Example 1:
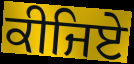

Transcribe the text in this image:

ਕੀਜਿਏ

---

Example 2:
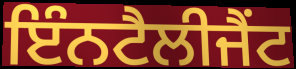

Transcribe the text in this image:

ਇੰਨਟੈਲੀਜੈਂਟ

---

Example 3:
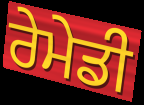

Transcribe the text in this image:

ਰੇਮੇਡੀ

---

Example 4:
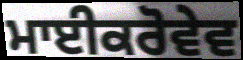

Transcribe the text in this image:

ਮਾਈਕਰੋਵੇਵ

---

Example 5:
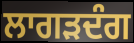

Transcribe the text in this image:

ਲਾਗੜਦੰਗ